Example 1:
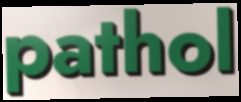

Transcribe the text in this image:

pathol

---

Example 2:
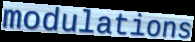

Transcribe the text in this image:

modulations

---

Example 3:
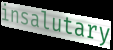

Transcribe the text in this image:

insalutary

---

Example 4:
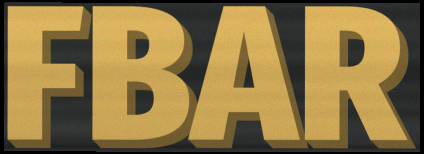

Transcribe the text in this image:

FBAR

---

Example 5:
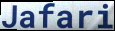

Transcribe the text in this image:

Jafari